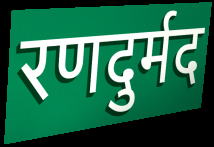
रणदुर्मद